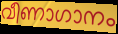
വീണാഗാനം